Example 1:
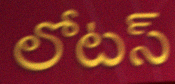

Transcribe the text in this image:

లోటస్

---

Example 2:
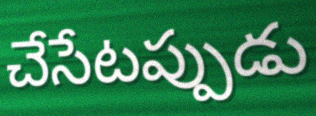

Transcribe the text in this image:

చేసేటప్పుడు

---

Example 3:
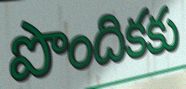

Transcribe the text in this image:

పొందికకు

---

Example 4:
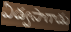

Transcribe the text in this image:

ఏడ్వసాగాడు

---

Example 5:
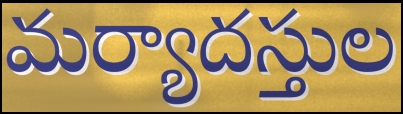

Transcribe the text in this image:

మర్యాదస్తుల